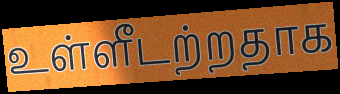
உள்ளீடற்றதாக